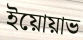
ইয়োয়াভ